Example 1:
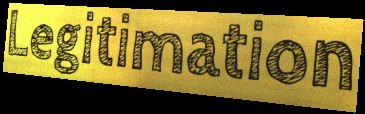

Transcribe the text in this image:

Legitimation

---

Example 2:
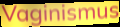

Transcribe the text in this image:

Vaginismus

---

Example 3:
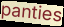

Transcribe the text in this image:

panties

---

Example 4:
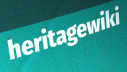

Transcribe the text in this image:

heritagewiki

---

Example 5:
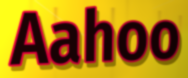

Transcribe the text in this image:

Aahoo